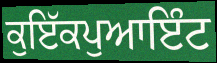
ਕੁਇੱਕਪੁਆਇੰਟ